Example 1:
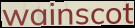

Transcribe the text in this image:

wainscot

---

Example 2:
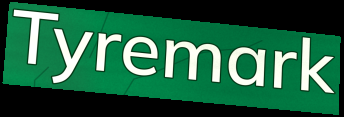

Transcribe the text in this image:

Tyremark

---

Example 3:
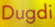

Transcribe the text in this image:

Dugdi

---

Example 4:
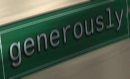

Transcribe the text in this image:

generously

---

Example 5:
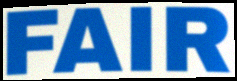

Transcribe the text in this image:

FAIR